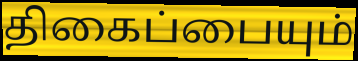
திகைப்பையும்